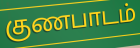
குணபாடம்